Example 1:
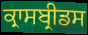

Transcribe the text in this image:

ਕ੍ਰਾਸਬ੍ਰੀਡਸ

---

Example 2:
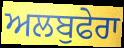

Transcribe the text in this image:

ਅਲਬੁਫੇਰਾ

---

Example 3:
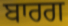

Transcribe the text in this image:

ਬਾਰਗ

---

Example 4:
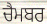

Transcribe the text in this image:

ਚੈਮਬਰ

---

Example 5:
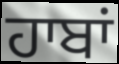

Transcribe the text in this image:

ਹਾਬਾਂ